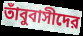
তাঁবুবাসীদের